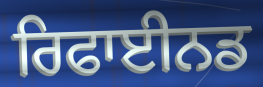
ਰਿਫਾਈਨਡ